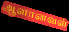
ஆளானவள்